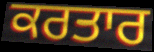
ਕਰਤਾਰ